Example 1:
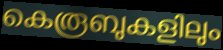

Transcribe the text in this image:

കെരൂബുകളിലും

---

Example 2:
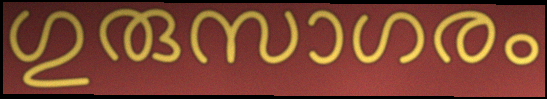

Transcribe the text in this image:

ഗുരുസാഗരം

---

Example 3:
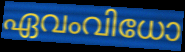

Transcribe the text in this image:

ഏവംവിധോ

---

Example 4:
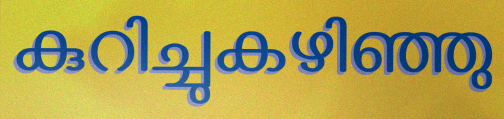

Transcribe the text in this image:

കുറിച്ചുകഴിഞ്ഞു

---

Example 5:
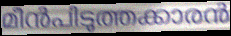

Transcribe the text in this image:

മീൻപിടുത്തക്കാരൻ